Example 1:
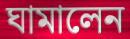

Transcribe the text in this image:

ঘামালেন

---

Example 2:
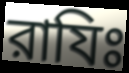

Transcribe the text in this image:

রাযিঃ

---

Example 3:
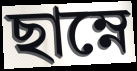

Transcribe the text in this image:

ছাম্নে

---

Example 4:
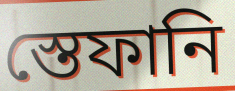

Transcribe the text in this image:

স্তেফানি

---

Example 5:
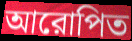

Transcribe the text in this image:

আরোপিত